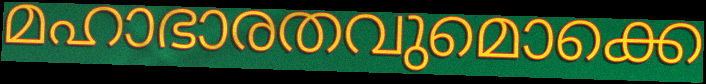
മഹാഭാരതവുമൊക്കെ